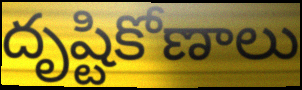
దృష్టికోణాలు